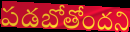
పడబోతోందని